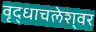
वृद्धाचलेश्वर